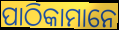
ପାଠିକାମାନେ